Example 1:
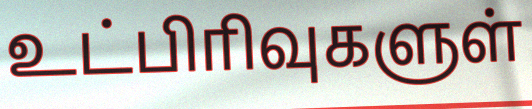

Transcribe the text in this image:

உட்பிரிவுகளுள்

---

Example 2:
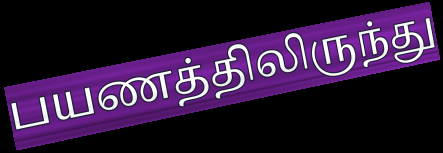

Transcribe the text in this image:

பயணத்திலிருந்து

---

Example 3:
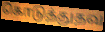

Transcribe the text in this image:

கொடுத்துதவ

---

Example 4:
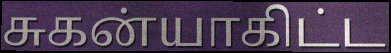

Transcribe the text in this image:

சுகன்யாகிட்ட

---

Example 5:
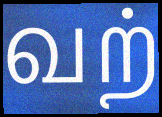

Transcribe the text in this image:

வற்